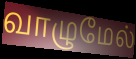
வாழுமேல்